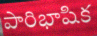
పారిభాషిక